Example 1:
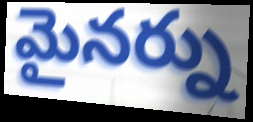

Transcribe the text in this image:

మైనర్ను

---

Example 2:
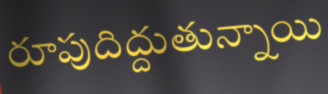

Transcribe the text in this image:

రూపుదిద్దుతున్నాయి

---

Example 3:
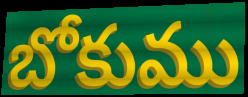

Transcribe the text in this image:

బోకుము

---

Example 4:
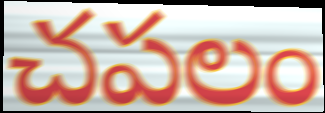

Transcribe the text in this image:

చపలం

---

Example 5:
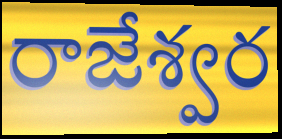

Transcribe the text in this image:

రాజేశ్వర